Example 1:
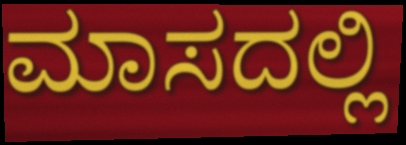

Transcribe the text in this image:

ಮಾಸದಲ್ಲಿ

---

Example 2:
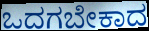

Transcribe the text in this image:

ಒದಗಬೇಕಾದ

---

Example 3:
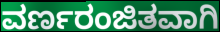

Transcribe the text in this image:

ವರ್ಣರಂಜಿತವಾಗಿ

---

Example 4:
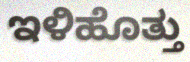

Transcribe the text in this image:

ಇಳಿಹೊತ್ತು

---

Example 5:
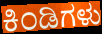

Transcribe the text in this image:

ಕಿಂಡಿಗಳು